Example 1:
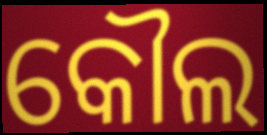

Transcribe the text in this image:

କୌଲ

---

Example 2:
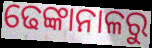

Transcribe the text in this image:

ଢେଙ୍କାନାଳରୁ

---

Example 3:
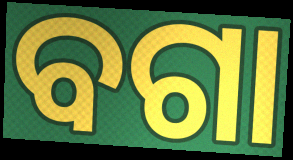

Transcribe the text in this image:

ବଗା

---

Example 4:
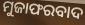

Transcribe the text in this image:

ମୁଜାଫରବାଦ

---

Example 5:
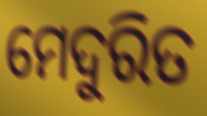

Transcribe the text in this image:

ମେଦୁରିତ